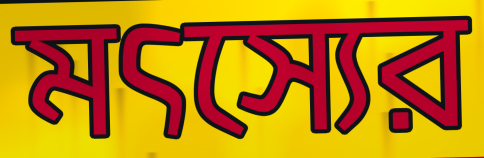
মৎস্যের